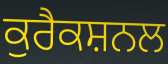
ਕੁਰੈਕਸ਼ਨਲ